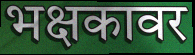
भक्षकावर